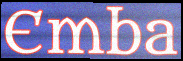
Emba